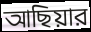
আছিয়ার